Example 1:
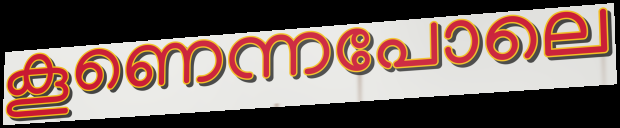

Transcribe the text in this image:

കൂണെന്നപോലെ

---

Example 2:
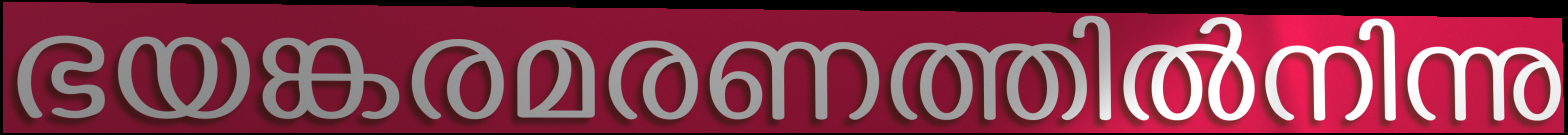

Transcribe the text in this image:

ഭയങ്കരമരണത്തിൽനിന്നു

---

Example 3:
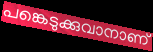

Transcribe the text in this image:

പങ്കെടുക്കുവാനാണ്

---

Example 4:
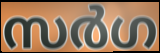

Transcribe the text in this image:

സർഗ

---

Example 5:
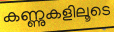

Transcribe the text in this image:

കണ്ണുകളിലൂടെ